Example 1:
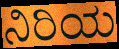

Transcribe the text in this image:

ನಿರಿಯ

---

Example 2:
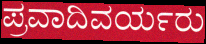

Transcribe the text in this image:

ಪ್ರವಾದಿವರ್ಯರು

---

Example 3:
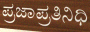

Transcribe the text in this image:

ಪ್ರಜಾಪ್ರತಿನಿಧಿ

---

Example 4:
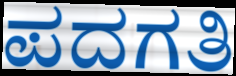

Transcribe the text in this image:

ಪದಗತಿ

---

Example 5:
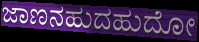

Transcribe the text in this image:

ಜಾಣನಹುದಹುದೋ